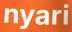
nyari